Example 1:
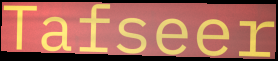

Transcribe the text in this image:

Tafseer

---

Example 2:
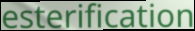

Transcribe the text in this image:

esterification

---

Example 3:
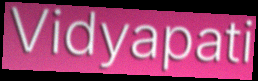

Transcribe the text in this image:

Vidyapati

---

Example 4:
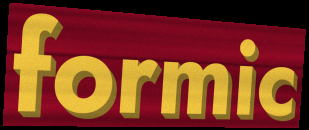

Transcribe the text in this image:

formic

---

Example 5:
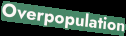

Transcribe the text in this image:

Overpopulation